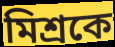
মিশ্রকে